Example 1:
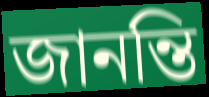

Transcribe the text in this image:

জানন্তি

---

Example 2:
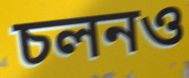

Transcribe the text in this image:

চলনও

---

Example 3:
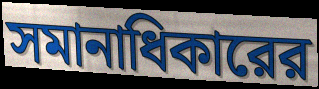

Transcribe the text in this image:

সমানাধিকারের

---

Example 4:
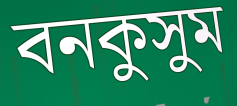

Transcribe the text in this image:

বনকুসুম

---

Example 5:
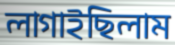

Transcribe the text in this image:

লাগাইছিলাম